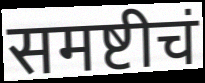
समष्टीचं